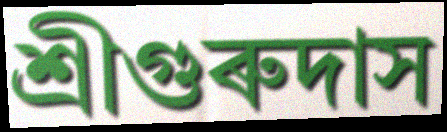
শ্ৰীগুৰুদাস